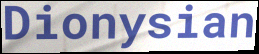
Dionysian